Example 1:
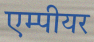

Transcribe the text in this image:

एम्पीयर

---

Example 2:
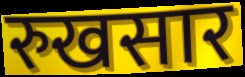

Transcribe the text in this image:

रुखसार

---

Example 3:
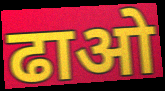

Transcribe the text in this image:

ढाओ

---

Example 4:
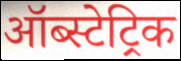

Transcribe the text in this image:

ऑब्स्टेट्रिक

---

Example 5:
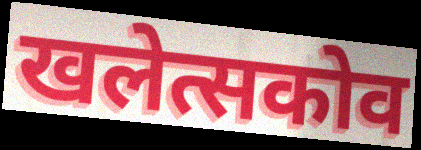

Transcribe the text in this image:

खलेत्सकोव